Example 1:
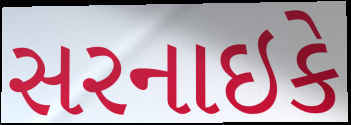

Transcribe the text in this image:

સરનાઇકે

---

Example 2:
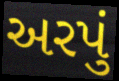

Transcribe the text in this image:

અરપું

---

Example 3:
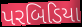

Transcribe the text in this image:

પરબિડિયા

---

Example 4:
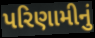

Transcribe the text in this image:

પરિણામીનું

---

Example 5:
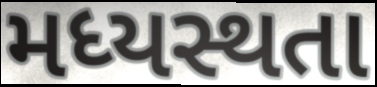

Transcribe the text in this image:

મધ્યસ્થતા